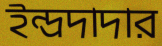
ইন্দ্রদাদার